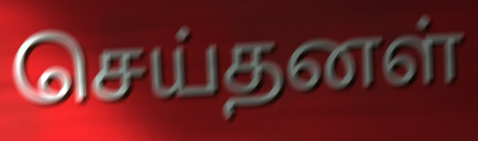
செய்தனள்